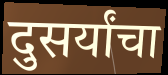
दुसर्यांचा